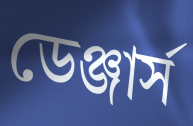
ডেঞ্জার্স